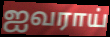
ஐவராய்